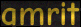
amrit